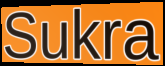
Sukra